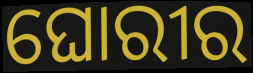
ଘୋରୀର